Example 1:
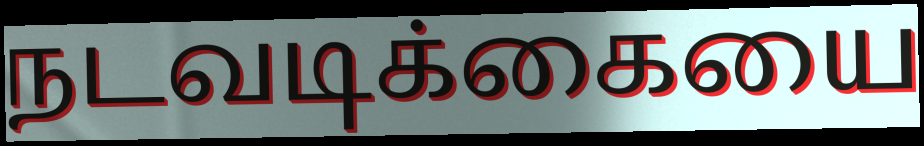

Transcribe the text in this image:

நடவடிக்கையை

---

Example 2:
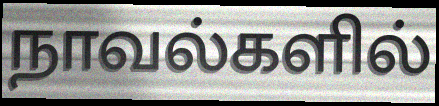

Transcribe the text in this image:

நாவல்களில்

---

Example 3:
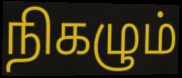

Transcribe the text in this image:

நிகழும்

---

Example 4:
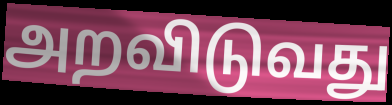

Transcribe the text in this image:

அறவிடுவது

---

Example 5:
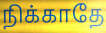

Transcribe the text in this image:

நிக்காதே